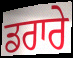
ਡਰਾਰੇ